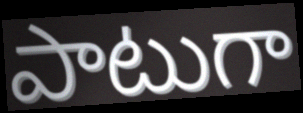
పాటుగా